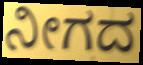
ನೀಗದ